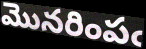
మొనరింపఁ